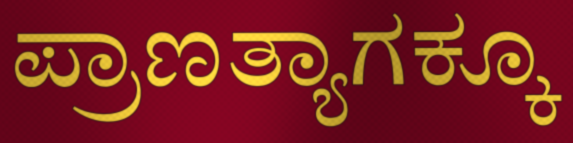
ಪ್ರಾಣತ್ಯಾಗಕ್ಕೂ